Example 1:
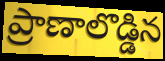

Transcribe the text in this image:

ప్రాణాలొడ్డిన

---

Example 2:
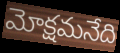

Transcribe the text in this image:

మోక్షమనేది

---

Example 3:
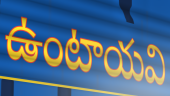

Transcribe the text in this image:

ఉంటాయవి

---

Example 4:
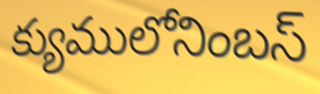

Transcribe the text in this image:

క్యుములోనింబస్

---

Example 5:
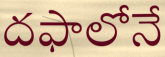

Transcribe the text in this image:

దఫాలోనే